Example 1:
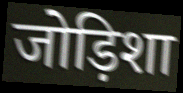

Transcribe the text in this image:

जोड़िशा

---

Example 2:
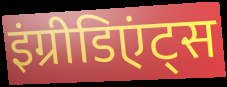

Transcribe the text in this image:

इंग्रीडिएंट्स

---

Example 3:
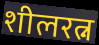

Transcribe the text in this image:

शीलरत्न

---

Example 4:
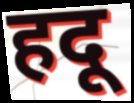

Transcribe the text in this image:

हदू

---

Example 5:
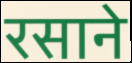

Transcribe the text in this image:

रसाने